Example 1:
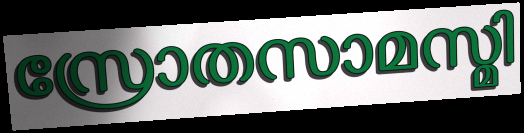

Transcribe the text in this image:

സ്രോതസാമസ്മി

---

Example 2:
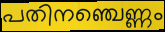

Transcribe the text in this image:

പതിനഞ്ചെണ്ണം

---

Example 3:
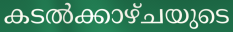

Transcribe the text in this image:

കടൽക്കാഴ്ചയുടെ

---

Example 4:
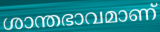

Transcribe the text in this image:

ശാന്തഭാവമാണ്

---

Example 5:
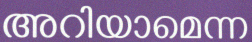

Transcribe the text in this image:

അറിയാമെന്ന